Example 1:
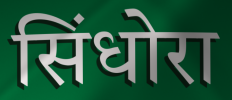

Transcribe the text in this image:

सिंधोरा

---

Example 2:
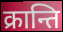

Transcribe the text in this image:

क्रान्ति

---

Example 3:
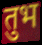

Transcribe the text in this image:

तुभ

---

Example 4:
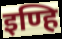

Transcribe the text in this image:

इण्हि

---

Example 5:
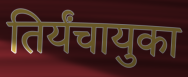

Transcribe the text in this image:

तिर्यंचायुका